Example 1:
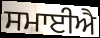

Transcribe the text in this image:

ਸਮਾਈਐ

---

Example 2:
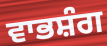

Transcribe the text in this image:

ਵਾਭਸ਼ੰਗ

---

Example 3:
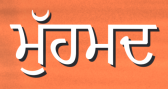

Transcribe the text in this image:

ਮੁੱਹਮਦ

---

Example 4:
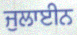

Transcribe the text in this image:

ਜੁਲਾਈਨ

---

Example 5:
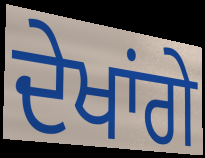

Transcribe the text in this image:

ਦੇਖਾਂਗੇ